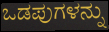
ಒಡಪುಗಳನ್ನು